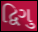
દ્વિગુ